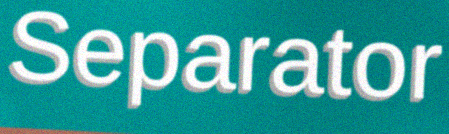
Separator